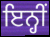
ਇਨ੍ਹੀਂ